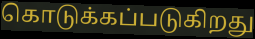
கொடுக்கப்படுகிறது